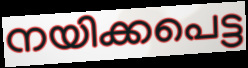
നയിക്കപെട്ട